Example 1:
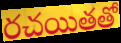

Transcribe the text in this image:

రచయితతో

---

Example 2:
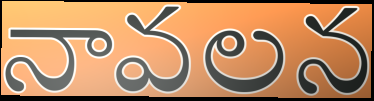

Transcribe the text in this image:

నావలన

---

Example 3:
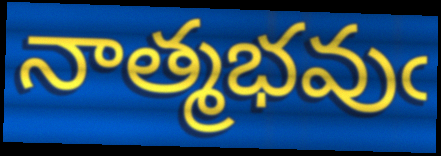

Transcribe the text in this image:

నాత్మభవుఁ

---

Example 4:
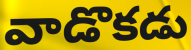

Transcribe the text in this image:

వాడొకడు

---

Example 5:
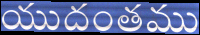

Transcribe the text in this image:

యుదంతము